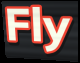
Fly